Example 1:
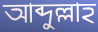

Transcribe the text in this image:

আব্দুল্লাহ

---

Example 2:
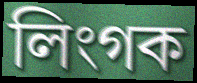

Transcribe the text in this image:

লিংগক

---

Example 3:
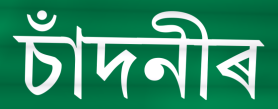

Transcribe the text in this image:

চাঁদনীৰ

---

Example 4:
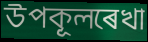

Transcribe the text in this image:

উপকূলৰেখা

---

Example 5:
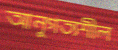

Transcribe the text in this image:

আনুগত্যশীল